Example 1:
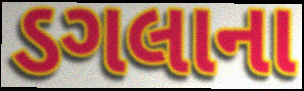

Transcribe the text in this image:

ડગલાના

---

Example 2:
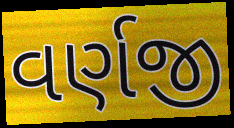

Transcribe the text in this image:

વર્ણજી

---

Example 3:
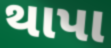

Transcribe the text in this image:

થાપા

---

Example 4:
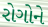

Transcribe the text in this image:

રોગોને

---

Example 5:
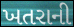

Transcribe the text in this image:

ખતરાની